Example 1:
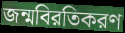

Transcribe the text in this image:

জন্মবিরতিকরণ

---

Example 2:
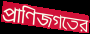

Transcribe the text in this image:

প্রাণিজগতের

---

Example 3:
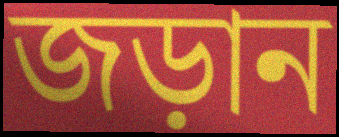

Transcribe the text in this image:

জড়ান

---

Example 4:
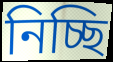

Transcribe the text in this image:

নিচ্ছি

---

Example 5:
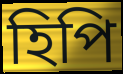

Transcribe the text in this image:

হিপি